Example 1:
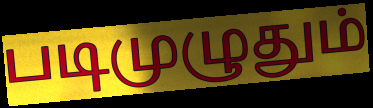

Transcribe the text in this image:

படிமுழுதும்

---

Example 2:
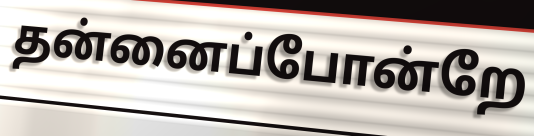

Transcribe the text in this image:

தன்னைப்போன்றே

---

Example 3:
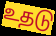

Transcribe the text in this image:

உதடு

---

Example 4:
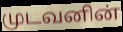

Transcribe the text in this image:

முடவனின்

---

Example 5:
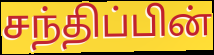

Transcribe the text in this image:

சந்திப்பின்